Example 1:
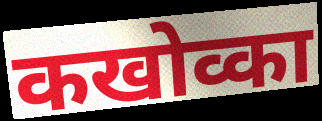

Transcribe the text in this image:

कखोव्का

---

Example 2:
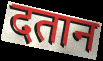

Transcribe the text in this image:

दतान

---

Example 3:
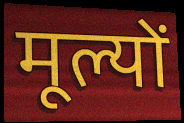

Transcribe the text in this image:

मूल्यों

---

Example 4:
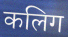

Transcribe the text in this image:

कलिग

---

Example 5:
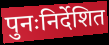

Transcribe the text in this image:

पुनःनिर्देशित